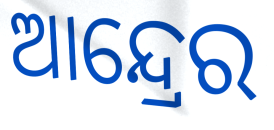
ଆନ୍ଦ୍ରେର